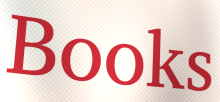
Books